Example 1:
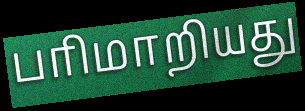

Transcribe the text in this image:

பரிமாறியது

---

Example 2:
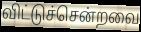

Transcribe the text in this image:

விட்டுச்சென்றவை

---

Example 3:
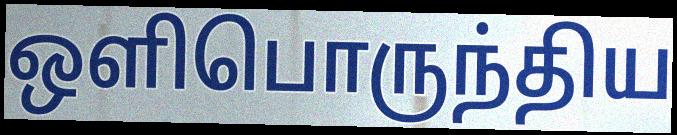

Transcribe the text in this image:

ஒளிபொருந்திய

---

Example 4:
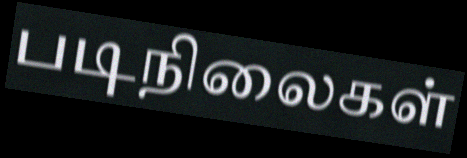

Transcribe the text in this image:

படிநிலைகள்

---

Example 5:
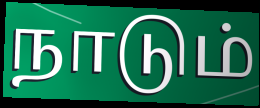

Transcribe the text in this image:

நாடும்